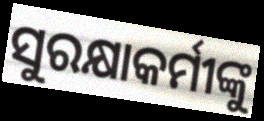
ସୁରକ୍ଷାକର୍ମୀଙ୍କୁ